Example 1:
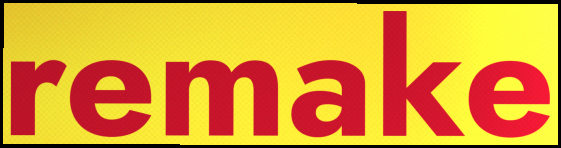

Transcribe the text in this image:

remake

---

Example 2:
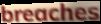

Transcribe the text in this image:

breaches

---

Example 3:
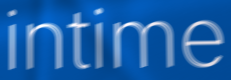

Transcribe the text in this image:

intime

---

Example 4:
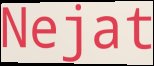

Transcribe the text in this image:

Nejat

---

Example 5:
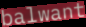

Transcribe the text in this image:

balwant